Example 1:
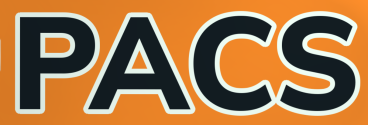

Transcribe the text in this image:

PACS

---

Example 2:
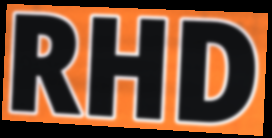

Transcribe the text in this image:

RHD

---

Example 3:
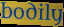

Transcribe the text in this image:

bodily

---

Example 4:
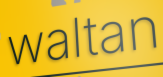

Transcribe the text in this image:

waltan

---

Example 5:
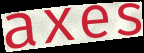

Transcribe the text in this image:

axes